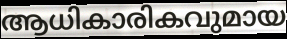
ആധികാരികവുമായ